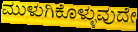
ಮುಳುಗಿಕೊಳ್ಳುವುದೇ